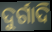
ଦୁର୍ଗାଦି